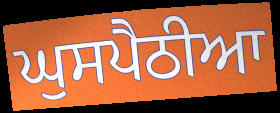
ਘੁਸਪੈਠੀਆ